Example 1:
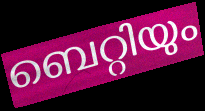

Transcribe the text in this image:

ബെറ്റിയും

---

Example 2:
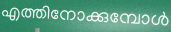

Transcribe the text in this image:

എത്തിനോക്കുമ്പോൾ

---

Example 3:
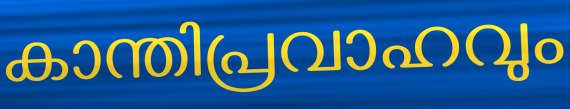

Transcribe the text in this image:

കാന്തിപ്രവാഹവും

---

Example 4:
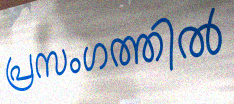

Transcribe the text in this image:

പ്രസംഗത്തിൽ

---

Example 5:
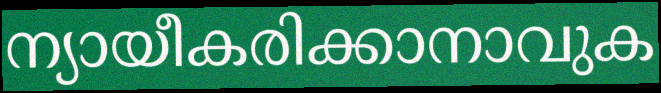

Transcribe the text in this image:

ന്യായീകരിക്കാനാവുക